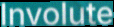
Involute